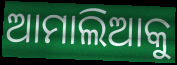
ଆମାଲିଆକୁ